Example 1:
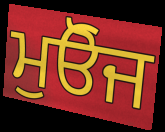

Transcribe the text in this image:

ਮੁਓੋਜ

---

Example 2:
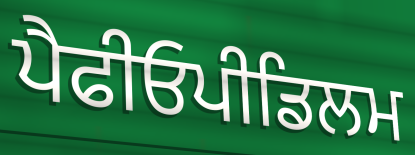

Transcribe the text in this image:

ਪੈਫੀਓਪੀਡਿਲਮ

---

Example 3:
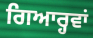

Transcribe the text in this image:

ਗਿਆਰ੍ਹਵਾਂ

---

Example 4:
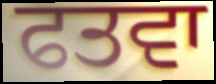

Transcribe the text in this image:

ਫਤਵਾ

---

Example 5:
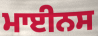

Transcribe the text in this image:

ਮਾਈਨਸ